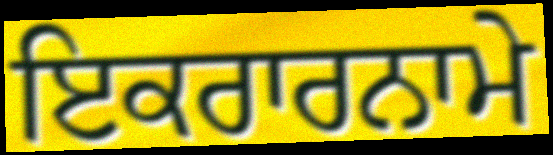
ਇਕਰਾਰਨਾਮੇ